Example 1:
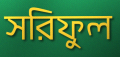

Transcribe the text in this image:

সরিফুল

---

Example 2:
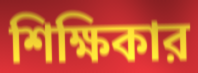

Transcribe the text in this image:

শিক্ষিকার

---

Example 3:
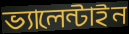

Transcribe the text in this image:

ভ্যালেন্টাইন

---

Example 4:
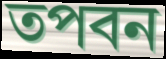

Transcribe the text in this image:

তপবন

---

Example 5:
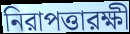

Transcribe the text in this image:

নিরাপত্তারক্ষী